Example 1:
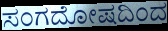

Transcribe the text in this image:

ಸಂಗದೋಷದಿಂದ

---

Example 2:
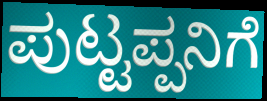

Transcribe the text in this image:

ಪುಟ್ಟಪ್ಪನಿಗೆ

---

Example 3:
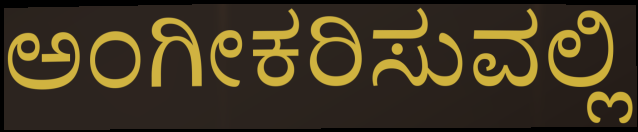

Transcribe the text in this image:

ಅಂಗೀಕರಿಸುವಲ್ಲಿ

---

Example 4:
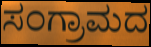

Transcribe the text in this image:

ಸಂಗ್ರಾಮದ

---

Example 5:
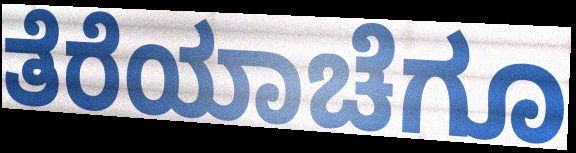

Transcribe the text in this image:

ತೆರೆಯಾಚೆಗೂ